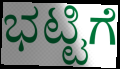
ಭಟ್ಟಿಗೆ